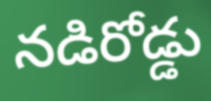
నడిరోడ్డు